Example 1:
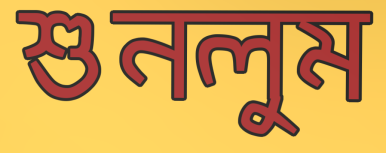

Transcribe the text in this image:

শুনলুম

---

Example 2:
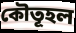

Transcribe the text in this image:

কৌতূহল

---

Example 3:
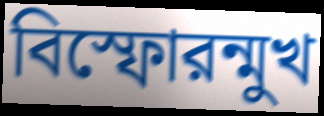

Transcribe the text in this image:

বিস্ফোরন্মুখ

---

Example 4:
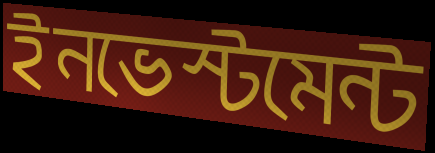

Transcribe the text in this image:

ইনভেস্টমেন্ট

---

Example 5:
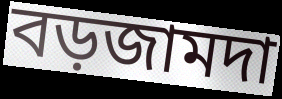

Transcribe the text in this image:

বড়জামদা